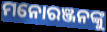
ମନୋରଞ୍ଜନଙ୍କୁ